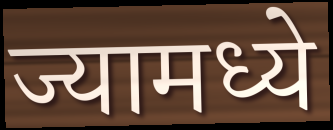
ज्यामध्ये